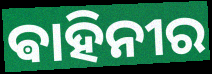
ଵାହିନୀର